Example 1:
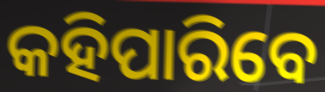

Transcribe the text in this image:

କହିପାରିବେ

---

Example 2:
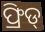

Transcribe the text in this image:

ଫ୍ରିଡ୍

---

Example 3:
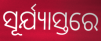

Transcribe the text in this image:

ସୂର୍ଯ୍ୟାସ୍ତରେ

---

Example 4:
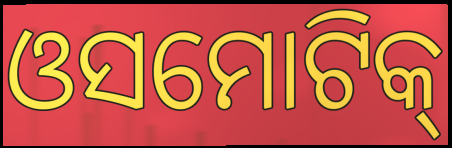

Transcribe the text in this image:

ଓସମୋଟିକ୍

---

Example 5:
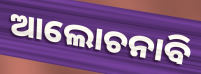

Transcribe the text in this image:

ଆଲୋଚନାବି